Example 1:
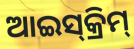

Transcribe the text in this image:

ଆଇସ୍‍କ୍ରିମ୍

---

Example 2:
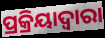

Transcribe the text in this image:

ପ୍ରକ୍ରିୟାଦ୍ଵାରା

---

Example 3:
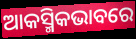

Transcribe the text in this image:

ଆକସ୍ମିକଭାବରେ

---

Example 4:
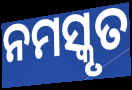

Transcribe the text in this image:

ନମସ୍କୃତ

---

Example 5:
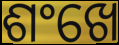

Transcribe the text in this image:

ଶଂଖେ